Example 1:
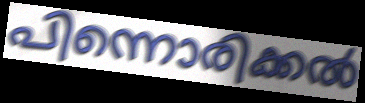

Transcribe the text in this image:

പിന്നൊരിക്കൽ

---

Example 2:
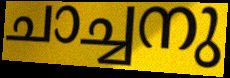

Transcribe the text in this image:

ചാച്ചനു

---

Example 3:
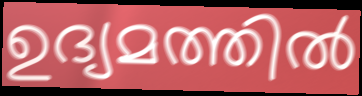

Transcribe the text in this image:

ഉദ്യമത്തിൽ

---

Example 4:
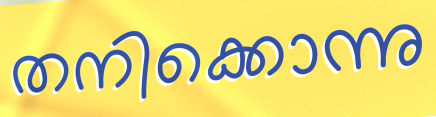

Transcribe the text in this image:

തനിക്കൊന്നു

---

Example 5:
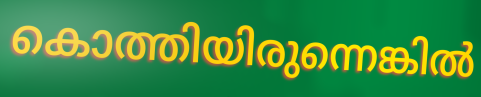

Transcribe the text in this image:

കൊത്തിയിരുന്നെങ്കിൽ